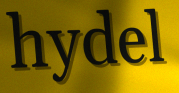
hydel